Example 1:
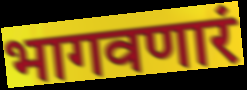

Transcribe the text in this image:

भागवणारं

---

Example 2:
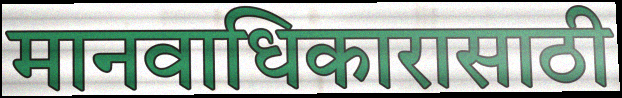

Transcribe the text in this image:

मानवाधिकारासाठी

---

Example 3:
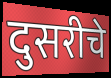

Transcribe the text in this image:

दुसरीचे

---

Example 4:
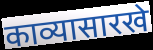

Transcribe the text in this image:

काव्यासारखे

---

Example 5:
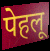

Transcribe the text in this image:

पेहलू